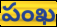
పంఖ